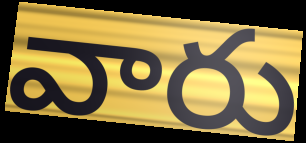
వారు